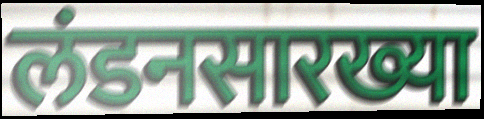
लंडनसारख्या